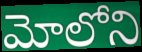
మోలోని